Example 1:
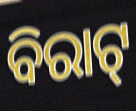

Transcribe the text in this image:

ବିରାଟ୍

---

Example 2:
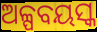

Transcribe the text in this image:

ଅଳ୍ପବୟସ୍କ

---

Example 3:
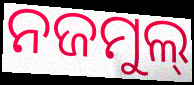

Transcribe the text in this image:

ନଜମୁଲ୍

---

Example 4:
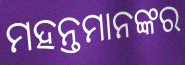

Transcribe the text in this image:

ମହନ୍ତମାନଙ୍କର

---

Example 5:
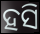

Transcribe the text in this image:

ହସି